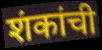
शंकांची